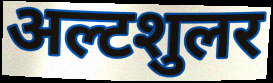
अल्टशुलर